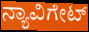
ನ್ಯಾವಿಗೇಟ್